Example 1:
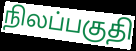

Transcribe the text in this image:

நிலப்பகுதி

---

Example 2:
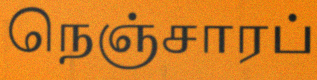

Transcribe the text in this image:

நெஞ்சாரப்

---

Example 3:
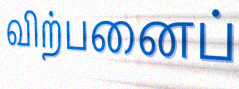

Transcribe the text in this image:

விற்பனைப்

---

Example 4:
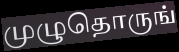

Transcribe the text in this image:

முழுதொருங்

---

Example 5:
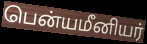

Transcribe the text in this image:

பென்யமீனியர்